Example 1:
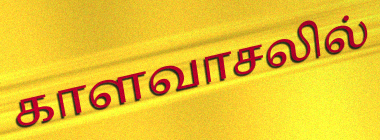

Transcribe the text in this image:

காளவாசலில்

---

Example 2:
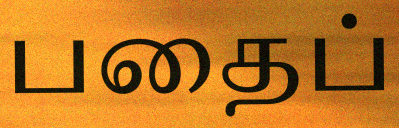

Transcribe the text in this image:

பதைப்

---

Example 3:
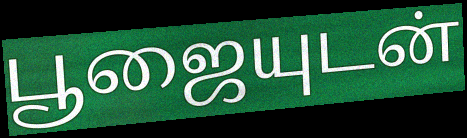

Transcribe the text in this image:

பூஜையுடன்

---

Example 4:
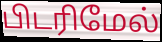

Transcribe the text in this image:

பிடரிமேல்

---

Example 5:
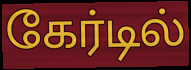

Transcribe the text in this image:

கேர்டில்